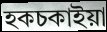
হকচকাইয়া